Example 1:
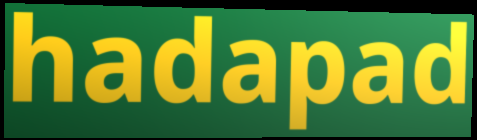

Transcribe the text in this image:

hadapad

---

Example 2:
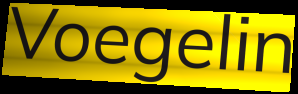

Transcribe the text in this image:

Voegelin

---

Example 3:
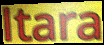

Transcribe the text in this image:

Itara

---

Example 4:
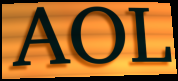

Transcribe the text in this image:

AOL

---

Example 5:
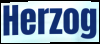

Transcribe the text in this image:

Herzog